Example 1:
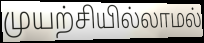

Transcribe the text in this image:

முயற்சியில்லாமல்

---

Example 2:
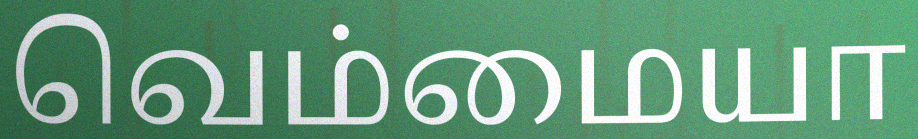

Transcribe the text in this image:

வெம்மையா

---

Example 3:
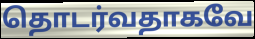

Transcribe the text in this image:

தொடர்வதாகவே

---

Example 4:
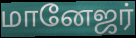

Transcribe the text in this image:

மானேஜர்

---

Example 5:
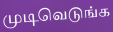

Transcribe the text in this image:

முடிவெடுங்க